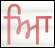
ਆਿ